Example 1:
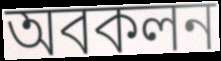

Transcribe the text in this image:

অবকলন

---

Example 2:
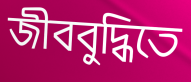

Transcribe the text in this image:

জীববুদ্ধিতে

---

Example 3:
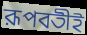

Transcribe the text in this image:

রূপবতীই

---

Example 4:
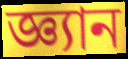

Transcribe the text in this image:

জ্ঞ্যান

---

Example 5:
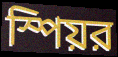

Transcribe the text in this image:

স্পিয়র